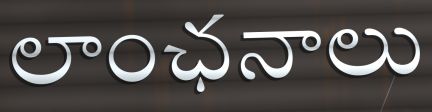
లాంఛనాలు